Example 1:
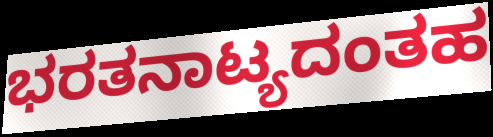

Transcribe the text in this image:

ಭರತನಾಟ್ಯದಂತಹ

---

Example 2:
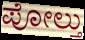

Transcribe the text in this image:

ಪೋಲ್ತು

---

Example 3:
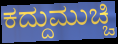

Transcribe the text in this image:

ಕದ್ದುಮುಚ್ಚಿ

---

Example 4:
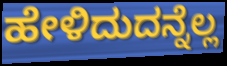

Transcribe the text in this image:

ಹೇಳಿದುದನ್ನೆಲ್ಲ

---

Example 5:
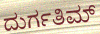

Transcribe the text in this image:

ದುರ್ಗತಿಮ್